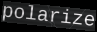
polarize